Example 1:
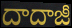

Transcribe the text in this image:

దాదాజీ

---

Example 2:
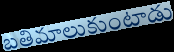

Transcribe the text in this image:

బతిమాలుకుంటాడు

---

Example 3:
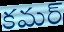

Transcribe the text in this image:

కమర్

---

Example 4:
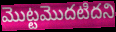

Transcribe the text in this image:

మొట్టమొదటిదని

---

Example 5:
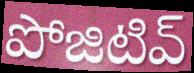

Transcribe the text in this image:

పోజిటివ్